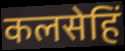
कलसेहिं